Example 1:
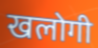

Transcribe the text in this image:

खलोगी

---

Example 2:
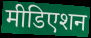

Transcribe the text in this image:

मीडिएशन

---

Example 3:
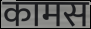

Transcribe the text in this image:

कामस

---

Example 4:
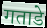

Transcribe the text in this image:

गताडे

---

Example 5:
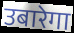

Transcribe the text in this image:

उबारेगा